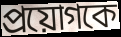
প্রয়োগকে